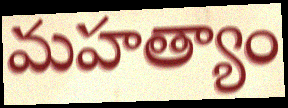
మహత్యాం